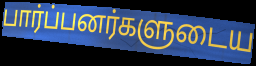
பார்ப்பனர்களுடைய